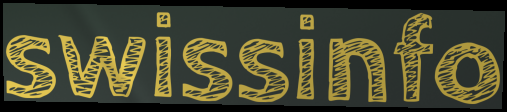
swissinfo